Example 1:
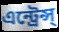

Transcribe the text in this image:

এন্ট্রেন্স্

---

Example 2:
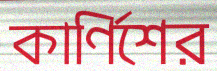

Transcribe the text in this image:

কার্ণিশের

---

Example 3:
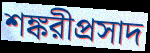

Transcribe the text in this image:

শঙ্করীপ্রসাদ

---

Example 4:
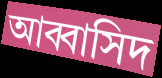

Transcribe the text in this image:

আব্বাসিদ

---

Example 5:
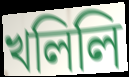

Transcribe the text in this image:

খলিলি